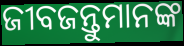
ଜୀବଜନ୍ତୁମାନଙ୍କ